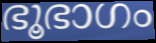
ഭൂഭാഗം